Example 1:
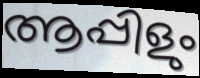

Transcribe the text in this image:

ആപ്പിളും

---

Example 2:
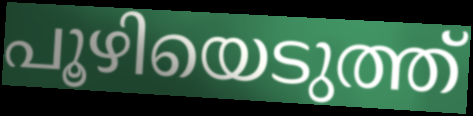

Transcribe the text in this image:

പൂഴിയെടുത്ത്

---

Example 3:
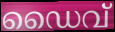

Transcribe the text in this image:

ഡൈവ്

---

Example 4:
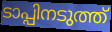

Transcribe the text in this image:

ടാപ്പിനടുത്ത്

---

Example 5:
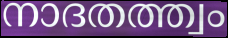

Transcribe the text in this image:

നാദതത്ത്വം